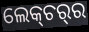
ଲେକ୍‌ଚର୍‌ର